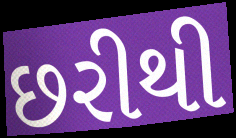
છરીથી